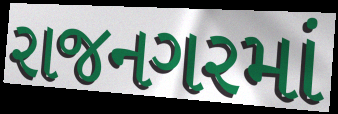
રાજનગરમાં